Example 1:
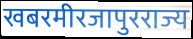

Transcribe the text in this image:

खबरमीरजापुरराज्य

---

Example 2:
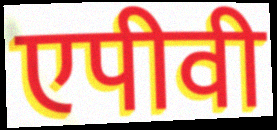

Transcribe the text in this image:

एपीवी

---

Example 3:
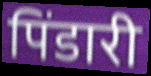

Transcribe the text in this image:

पिंडारी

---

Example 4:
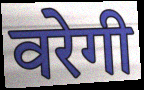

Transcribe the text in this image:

वरेगी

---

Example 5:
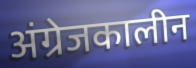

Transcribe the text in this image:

अंग्रेजकालीन